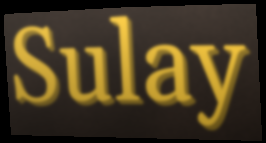
Sulay